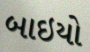
બાઇયો